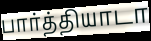
பார்த்தியாடா